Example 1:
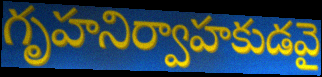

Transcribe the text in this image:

గృహనిర్వాహకుడవై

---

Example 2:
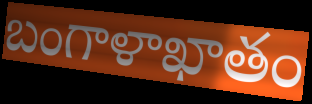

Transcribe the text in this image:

బంగాళాఖాతం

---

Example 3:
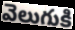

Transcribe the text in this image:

వెలుగుకి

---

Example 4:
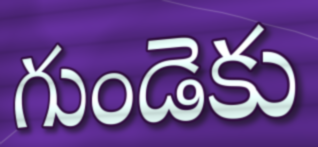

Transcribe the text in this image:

గుండెకు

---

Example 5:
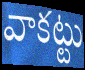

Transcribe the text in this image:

వాకట్టు